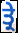
ਤ੍ਰੇ